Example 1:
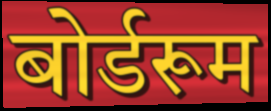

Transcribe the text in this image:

बोर्डरूम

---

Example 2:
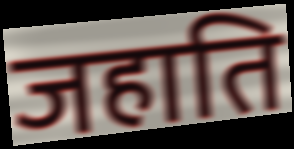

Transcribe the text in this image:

जहाति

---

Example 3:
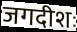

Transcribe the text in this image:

जगदीशः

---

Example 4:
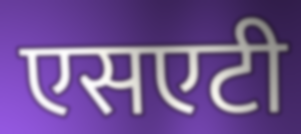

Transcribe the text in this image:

एसएटी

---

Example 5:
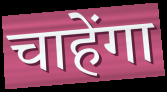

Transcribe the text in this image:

चाहेंगा